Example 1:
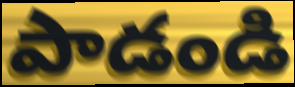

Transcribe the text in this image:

పాడండి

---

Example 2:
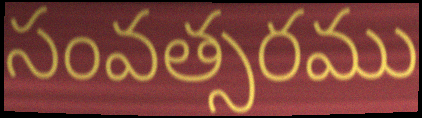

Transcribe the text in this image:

సంవత్సరము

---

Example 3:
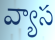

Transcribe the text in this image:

వ్యాస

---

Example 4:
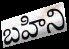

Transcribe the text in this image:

బహిని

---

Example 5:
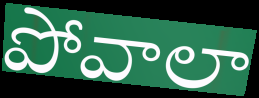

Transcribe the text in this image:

పోవాలా